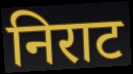
निराट